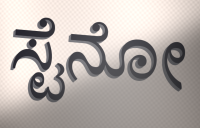
ಸ್ಟೆನೋ